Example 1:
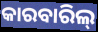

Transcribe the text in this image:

କାରବାରିଲ୍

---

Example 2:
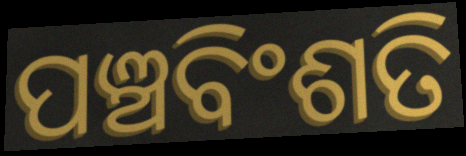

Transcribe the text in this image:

ପଞ୍ଚବିଂଶତି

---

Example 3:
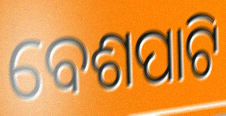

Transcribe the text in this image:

ବେଶପାଟି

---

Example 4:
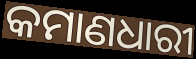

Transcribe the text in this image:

କମାଣଧାରୀ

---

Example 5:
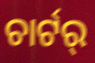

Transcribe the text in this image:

ଚାର୍ଟର୍